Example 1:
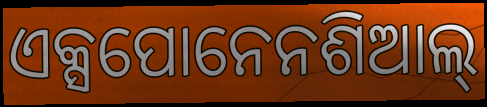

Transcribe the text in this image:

ଏକ୍ସପୋନେନଶିଆଲ୍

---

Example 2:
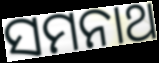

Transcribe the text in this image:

ସମନାଥ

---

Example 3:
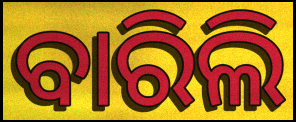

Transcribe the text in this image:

ବାରିଲି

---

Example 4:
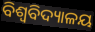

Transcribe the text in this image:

ବିଶ୍ଵବିଦ୍ୟାଳୟ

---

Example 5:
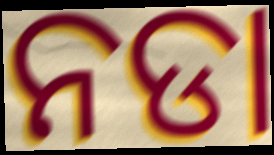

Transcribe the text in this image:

ନଡା